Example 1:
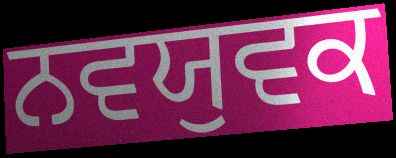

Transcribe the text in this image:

ਨਵਯੁਵਕ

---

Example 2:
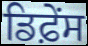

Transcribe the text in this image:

ਡਿਫ਼ੇਂਸ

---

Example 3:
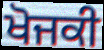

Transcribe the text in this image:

ਖੋਜਕੀ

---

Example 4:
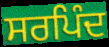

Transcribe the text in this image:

ਸਰਪਿੰਦ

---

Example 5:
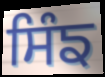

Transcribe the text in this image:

ਸਿੰਙ